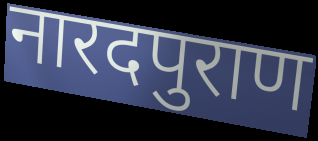
नारदपुराण